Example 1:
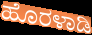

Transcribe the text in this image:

ಹೊರಳಾಡಿ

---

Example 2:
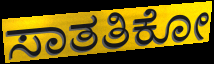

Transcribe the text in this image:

ಸಾತತಿಕೋ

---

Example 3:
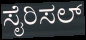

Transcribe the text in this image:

ಸೈರಿಸಲ್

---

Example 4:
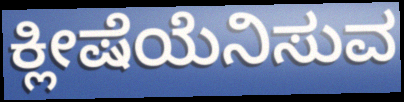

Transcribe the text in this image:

ಕ್ಲೀಷೆಯೆನಿಸುವ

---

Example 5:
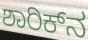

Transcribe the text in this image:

ಶಾರಿಕ್‌ನ